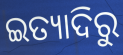
ଇତ୍ୟାଦିରୁ